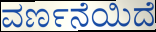
ವರ್ಣನೆಯಿದೆ